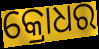
କ୍ରୋଧର